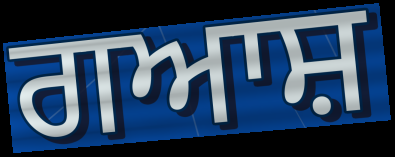
ਗਆਸ਼